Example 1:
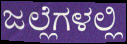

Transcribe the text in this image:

ಜಲ್ಲೆಗಳಲ್ಲಿ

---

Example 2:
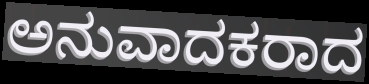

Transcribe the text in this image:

ಅನುವಾದಕರಾದ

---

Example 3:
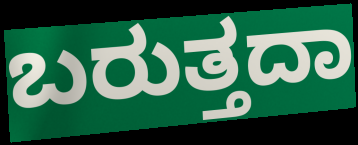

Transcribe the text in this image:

ಬರುತ್ತದಾ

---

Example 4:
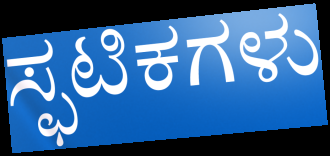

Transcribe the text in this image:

ಸ್ಫಟಿಕಗಳು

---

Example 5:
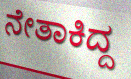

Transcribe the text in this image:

ನೇತಾಕಿದ್ದ